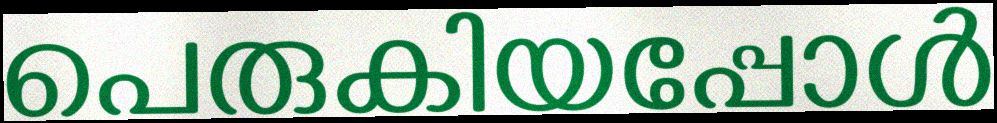
പെരുകിയപ്പോൾ